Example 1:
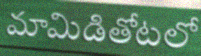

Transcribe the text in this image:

మామిడితోటలో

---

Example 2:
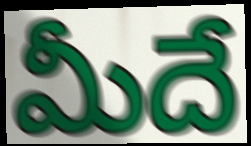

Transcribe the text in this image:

మీదే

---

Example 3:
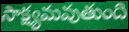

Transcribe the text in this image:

సాక్ష్యమవుతుంది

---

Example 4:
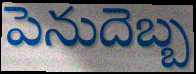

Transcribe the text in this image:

పెనుదెబ్బ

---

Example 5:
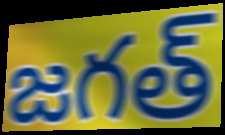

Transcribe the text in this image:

జగత్